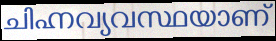
ചിഹ്നവ്യവസ്ഥയാണ്